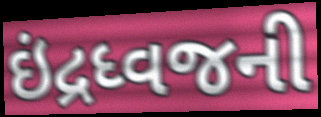
ઇંદ્રધ્વજની